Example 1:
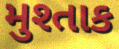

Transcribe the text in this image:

મુશ્તાક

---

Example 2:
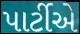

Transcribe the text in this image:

પાર્ટીએ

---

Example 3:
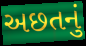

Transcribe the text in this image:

અછતનું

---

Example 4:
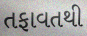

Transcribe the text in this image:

તફાવતથી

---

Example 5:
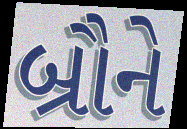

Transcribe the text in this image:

બ્રૌને